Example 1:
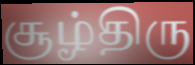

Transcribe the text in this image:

சூழ்திரு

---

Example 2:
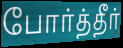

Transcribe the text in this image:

போர்த்தீர்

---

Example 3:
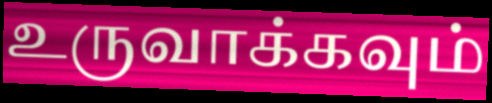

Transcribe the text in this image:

உருவாக்கவும்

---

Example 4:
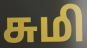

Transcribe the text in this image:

சுமி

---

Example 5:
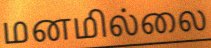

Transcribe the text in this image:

மனமில்லை